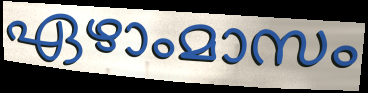
ഏഴാംമാസം